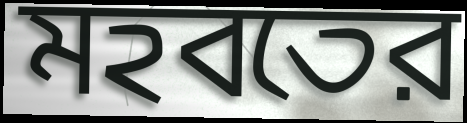
মহবতের